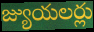
జ్యుయలర్లు